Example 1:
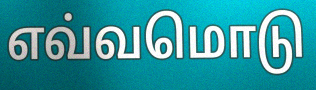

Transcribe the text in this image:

எவ்வமொடு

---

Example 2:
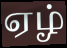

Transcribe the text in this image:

ஏழ்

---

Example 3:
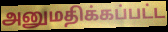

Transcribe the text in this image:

அனுமதிக்கப்பட்ட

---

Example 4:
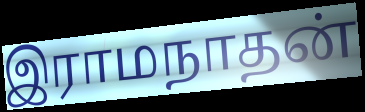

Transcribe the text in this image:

இராமநாதன்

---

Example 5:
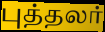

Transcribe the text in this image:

புத்தலர்